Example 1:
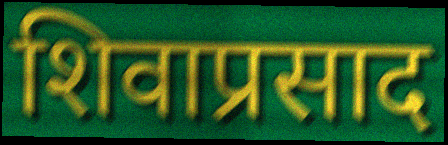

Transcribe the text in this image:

शिवाप्रसाद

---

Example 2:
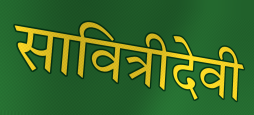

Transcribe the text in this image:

सावित्रीदेवी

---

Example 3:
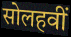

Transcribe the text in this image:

सोलहवीं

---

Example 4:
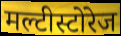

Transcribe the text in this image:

मल्टीस्टोरेज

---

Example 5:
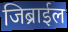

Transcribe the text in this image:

जिब्राईल